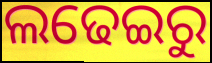
ଲଢେଇରୁ